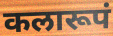
कलारूपं